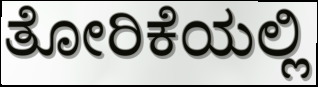
ತೋರಿಕೆಯಲ್ಲಿ